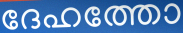
ദേഹത്തോ